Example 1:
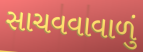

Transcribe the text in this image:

સાચવવાવાળું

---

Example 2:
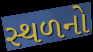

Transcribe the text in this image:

સ્થળનો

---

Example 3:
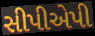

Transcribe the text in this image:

સીપીએપી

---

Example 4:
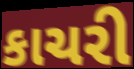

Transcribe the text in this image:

કાચરી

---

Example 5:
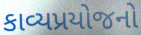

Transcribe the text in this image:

કાવ્યપ્રયોજનો